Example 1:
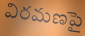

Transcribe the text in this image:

విరమణపై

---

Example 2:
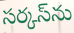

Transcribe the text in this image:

సర్కస్‌ను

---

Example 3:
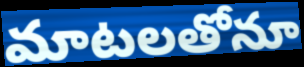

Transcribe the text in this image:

మాటలతోనూ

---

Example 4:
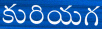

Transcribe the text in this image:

కురియగ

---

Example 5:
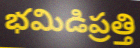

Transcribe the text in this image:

భమిడిప్రత్తి